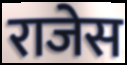
राजेस